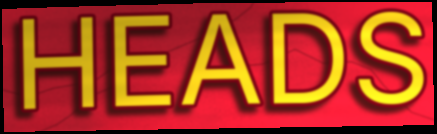
HEADS